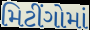
મિટીંગોમાં